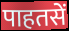
पाहतसें